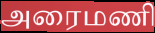
அரைமணி